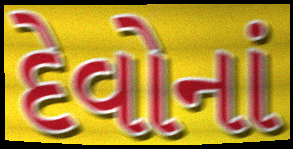
દેવોનાં